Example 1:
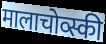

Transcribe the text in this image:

मालाचोव्स्की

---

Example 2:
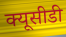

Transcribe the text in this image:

क्यूसीडी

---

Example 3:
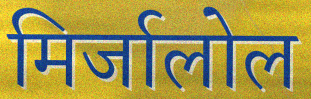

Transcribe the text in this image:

मिर्जालोल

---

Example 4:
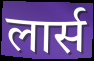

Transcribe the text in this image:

लार्स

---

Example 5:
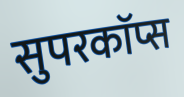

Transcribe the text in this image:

सुपरकॉप्स